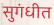
सुगंधीत